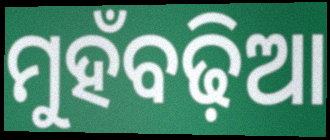
ମୁହଁବଢ଼ିଆ